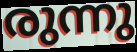
രുന്നു